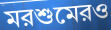
মরশুমেরও